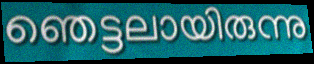
ഞെട്ടലായിരുന്നു